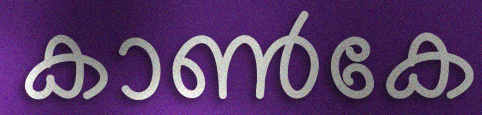
കാൺകേ